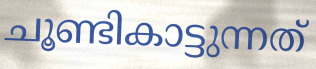
ചൂണ്ടികാട്ടുന്നത്